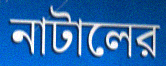
নাটালের